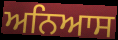
ਅਨਿਆਸ